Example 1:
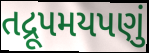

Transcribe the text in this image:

તદ્રૂપમયપણું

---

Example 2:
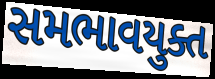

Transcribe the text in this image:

સમભાવયુક્ત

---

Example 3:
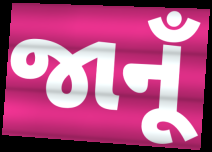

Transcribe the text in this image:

જાનૂઁ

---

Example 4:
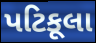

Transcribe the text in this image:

પટિકૂલા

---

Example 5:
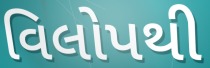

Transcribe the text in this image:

વિલોપથી